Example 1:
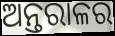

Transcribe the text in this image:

ଅନ୍ତରାଳର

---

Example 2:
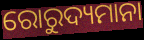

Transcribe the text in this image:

ରୋରୁଦ୍ୟମାନା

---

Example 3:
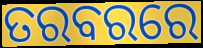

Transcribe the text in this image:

ତରବରରେ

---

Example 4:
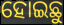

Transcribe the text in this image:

ହୋଇଛୁ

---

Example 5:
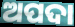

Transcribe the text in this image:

ଅପଦା